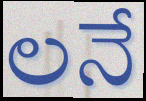
లనే